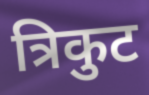
त्रिकुट